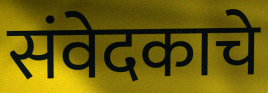
संवेदकाचे